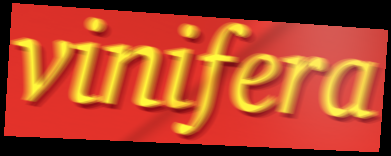
vinifera